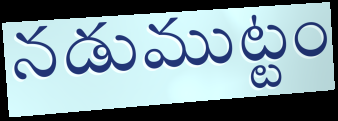
నడుముట్టం